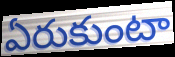
ఏరుకుంటా